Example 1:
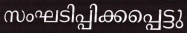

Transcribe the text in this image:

സംഘടിപ്പിക്കപ്പെട്ടു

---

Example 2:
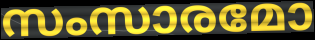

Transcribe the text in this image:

സംസാരമോ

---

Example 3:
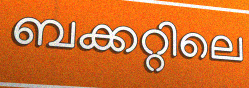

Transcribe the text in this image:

ബക്കറ്റിലെ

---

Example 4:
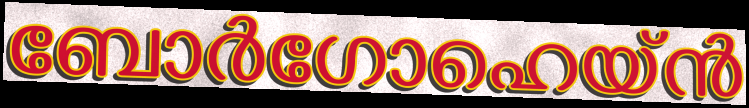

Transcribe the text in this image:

ബോർഗോഹെയ്ൻ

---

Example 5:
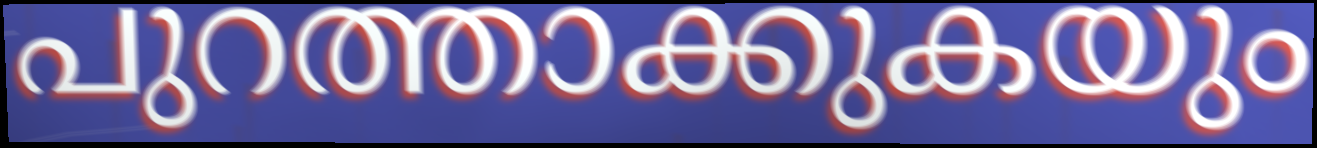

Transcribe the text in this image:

പുറത്താക്കുകയും